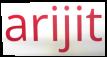
arijit